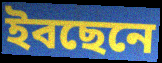
ইবছেনে